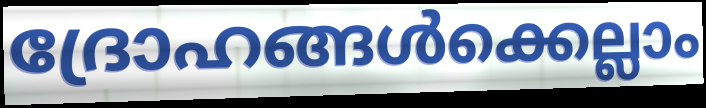
ദ്രോഹങ്ങൾക്കെല്ലാം